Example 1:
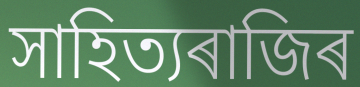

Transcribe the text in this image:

সাহিত্যৰাজিৰ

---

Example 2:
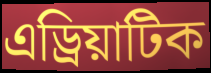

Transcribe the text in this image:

এড্ৰিয়াটিক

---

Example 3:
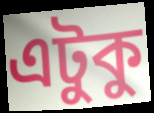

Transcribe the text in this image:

এটুকু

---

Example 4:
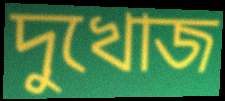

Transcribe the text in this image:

দুখোজ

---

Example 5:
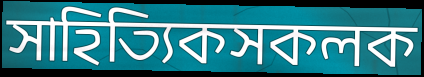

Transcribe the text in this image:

সাহিত্যিকসকলক